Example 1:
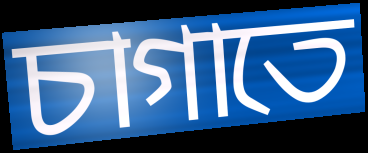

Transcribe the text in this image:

চাগাতে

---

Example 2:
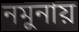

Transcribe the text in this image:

নমুনায়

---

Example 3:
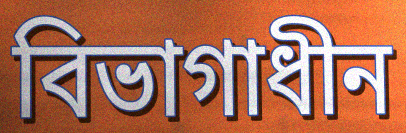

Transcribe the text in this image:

বিভাগাধীন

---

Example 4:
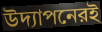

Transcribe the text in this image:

উদ্যাপনেরই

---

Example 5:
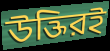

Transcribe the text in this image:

উক্তিরই